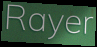
Rayer